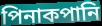
পিনাকপানি